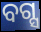
ବଗ୍ସ